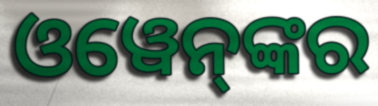
ଓୱେନ୍‌ଙ୍କର